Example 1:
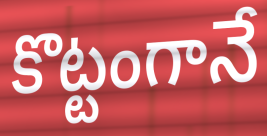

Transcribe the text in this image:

కొట్టంగానే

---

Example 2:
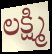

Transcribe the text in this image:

లక్ష్మి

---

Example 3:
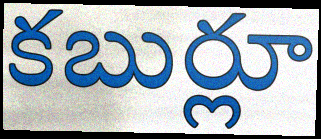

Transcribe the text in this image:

కబుర్లూ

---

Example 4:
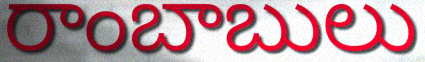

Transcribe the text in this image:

రాంబాబులు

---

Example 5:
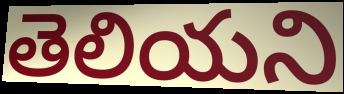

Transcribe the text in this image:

తెలియని